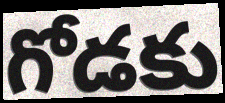
గోడకు